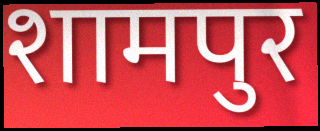
शामपुर